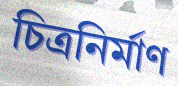
চিত্রনির্মাণ